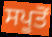
ਸਪੂਤੋਂ